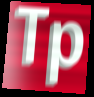
Tp